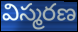
విస్మరణ